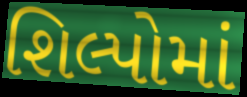
શિલ્પોમાં